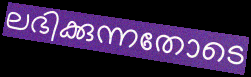
ലഭിക്കുന്നതോടെ